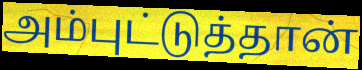
அம்புட்டுத்தான்